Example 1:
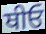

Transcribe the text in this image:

ਥੀਓ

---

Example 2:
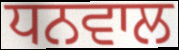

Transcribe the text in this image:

ਧਨਵਾਲ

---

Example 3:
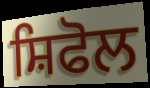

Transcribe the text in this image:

ਸ਼ਿਫੋਲ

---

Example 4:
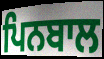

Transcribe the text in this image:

ਪਿਨਬਾਲ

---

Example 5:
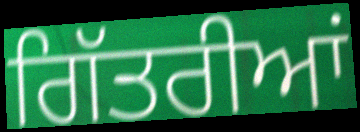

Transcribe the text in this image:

ਗਿੱਤਰੀਆਂ